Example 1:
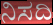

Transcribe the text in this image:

ನಿಸದಿ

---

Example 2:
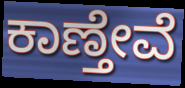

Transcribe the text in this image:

ಕಾಣ್ತೇವೆ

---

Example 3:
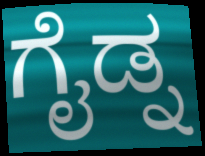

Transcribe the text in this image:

ಗೈಡ್ನ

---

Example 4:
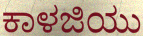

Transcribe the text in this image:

ಕಾಳಜಿಯು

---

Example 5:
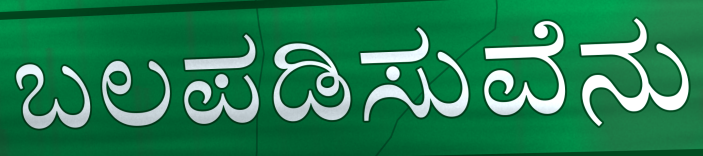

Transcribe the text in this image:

ಬಲಪಡಿಸುವೆನು